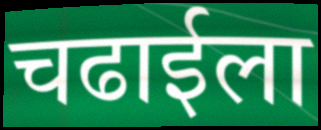
चढाईला